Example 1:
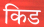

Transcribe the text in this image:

किड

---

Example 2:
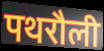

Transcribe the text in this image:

पथरौली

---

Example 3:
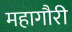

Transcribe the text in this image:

महागौरी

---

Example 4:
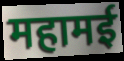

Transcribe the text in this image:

महामई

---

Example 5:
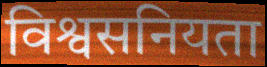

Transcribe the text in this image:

विश्वसनियता